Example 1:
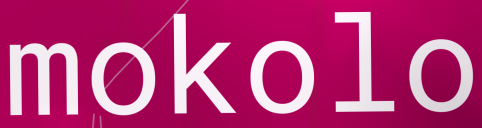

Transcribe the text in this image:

mokolo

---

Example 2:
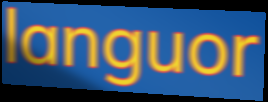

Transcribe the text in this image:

languor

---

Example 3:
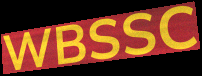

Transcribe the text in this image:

WBSSC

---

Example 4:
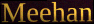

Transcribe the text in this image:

Meehan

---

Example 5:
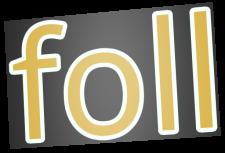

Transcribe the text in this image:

foll